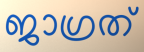
ജാഗ്രത്